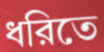
ধরিতে